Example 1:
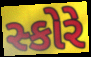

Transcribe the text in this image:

સ્કોરે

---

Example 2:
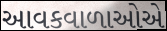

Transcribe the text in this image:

આવકવાળાઓએ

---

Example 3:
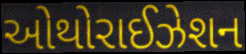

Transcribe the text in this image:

ઓથોરાઈઝેશન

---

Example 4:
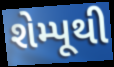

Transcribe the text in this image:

શેમ્પૂથી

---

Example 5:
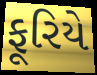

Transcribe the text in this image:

ફૂરિયે